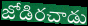
జోడిరచాడు